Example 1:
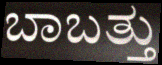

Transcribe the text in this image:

ಬಾಬತ್ತು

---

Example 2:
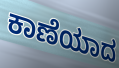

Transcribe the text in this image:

ಕಾಣೆಯಾದ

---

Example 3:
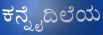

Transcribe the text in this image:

ಕನ್ನೈದಿಲೆಯ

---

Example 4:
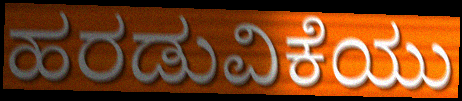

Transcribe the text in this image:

ಹರಡುವಿಕೆಯು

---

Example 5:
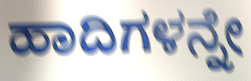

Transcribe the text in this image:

ಹಾದಿಗಳನ್ನೇ